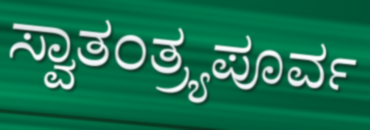
ಸ್ವಾತಂತ್ರ್ಯಪೂರ್ವ